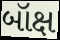
બૉક્ષ